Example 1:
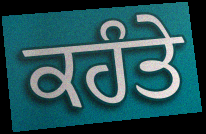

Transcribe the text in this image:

ਕਹੰਤੇ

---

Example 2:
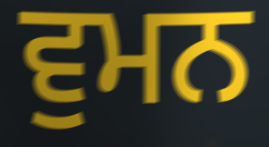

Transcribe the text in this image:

ਵੁਮਨ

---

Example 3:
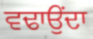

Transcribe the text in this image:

ਵਢਾਉਂਦਾ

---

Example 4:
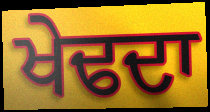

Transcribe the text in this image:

ਖੇਢਦਾ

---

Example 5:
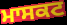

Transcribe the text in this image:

ਮਾਸਕਟ